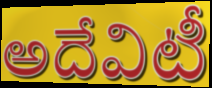
అదేవిటీ